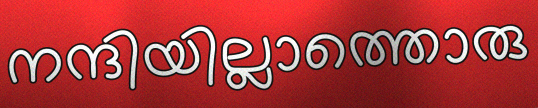
നന്ദിയില്ലാത്തൊരു